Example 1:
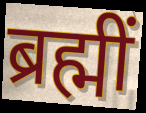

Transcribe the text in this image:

ब्रह्मीं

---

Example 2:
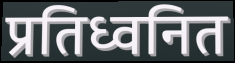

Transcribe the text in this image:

प्रतिध्वनित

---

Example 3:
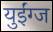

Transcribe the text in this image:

युईंग्ज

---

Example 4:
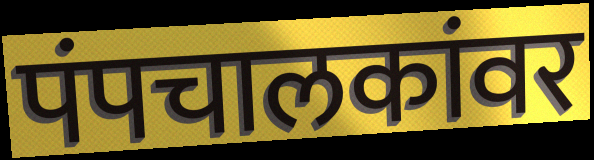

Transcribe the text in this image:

पंपचालकांवर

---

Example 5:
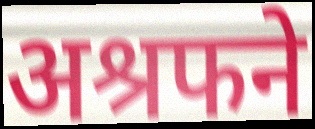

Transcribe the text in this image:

अश्रफने